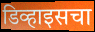
डिव्हाइसचा